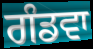
ਗੰਡਵਾ